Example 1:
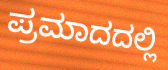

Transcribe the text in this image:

ಪ್ರಮಾದದಲ್ಲಿ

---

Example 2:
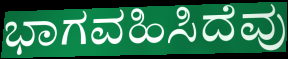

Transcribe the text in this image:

ಭಾಗವಹಿಸಿದೆವು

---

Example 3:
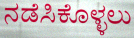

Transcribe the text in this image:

ನಡೆಸಿಕೊಳ್ಳಲು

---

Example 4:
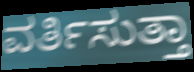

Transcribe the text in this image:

ವರ್ತಿಸುತ್ತಾ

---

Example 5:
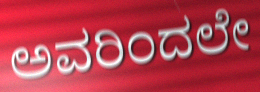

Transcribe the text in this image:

ಅವರಿಂದಲೇ